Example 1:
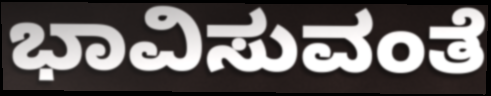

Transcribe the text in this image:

ಭಾವಿಸುವಂತೆ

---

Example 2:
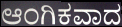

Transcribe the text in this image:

ಆಂಗಿಕವಾದ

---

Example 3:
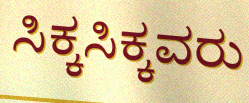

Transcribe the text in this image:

ಸಿಕ್ಕಸಿಕ್ಕವರು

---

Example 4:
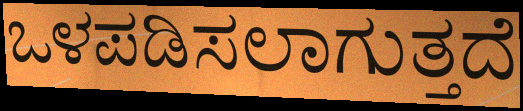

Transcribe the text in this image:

ಒಳಪಡಿಸಲಾಗುತ್ತದೆ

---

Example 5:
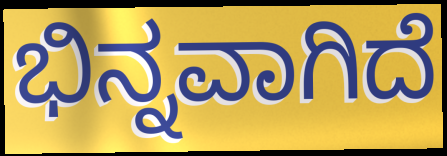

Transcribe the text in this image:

ಭಿನ್ನವಾಗಿದೆ